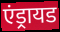
एंड्रायड